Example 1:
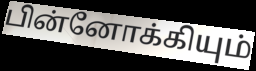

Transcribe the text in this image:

பின்னோக்கியும்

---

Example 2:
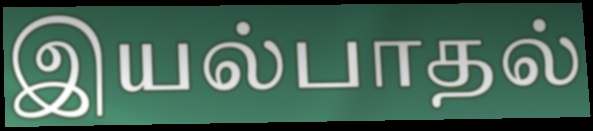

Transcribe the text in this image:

இயல்பாதல்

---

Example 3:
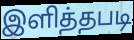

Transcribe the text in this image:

இளித்தபடி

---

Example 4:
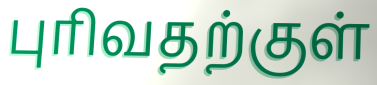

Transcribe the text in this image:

புரிவதற்குள்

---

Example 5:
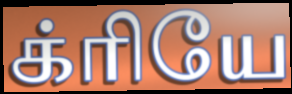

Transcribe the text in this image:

க்ரியே